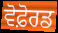
ਵੋਫ਼ੋਰਡ